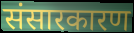
संसारकारण